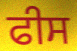
ਫੀਸ